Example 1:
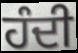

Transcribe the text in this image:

ਹੰਦੀ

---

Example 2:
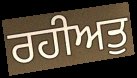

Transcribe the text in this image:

ਰਹੀਅਤੁ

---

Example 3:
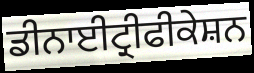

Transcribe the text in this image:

ਡੀਨਾਈਟ੍ਰੀਫੀਕੇਸ਼ਨ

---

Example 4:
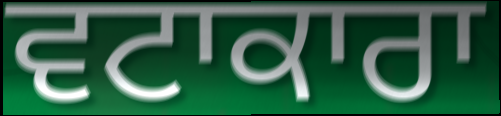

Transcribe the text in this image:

ਵਟਾਕਾਰਾ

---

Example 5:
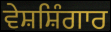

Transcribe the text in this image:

ਵੇਸ਼ਸ਼ਿੰਗਾਰ